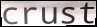
crust